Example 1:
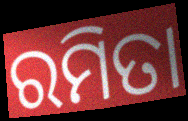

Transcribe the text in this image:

ରମିତା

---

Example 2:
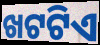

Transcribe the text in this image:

ଖଟଟିଏ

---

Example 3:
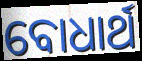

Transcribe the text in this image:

ବୋଧାର୍ଥ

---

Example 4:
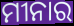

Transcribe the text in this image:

ମୀନାର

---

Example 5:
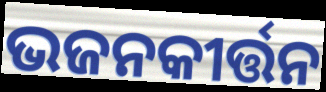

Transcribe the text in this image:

ଭଜନକୀର୍ତ୍ତନ